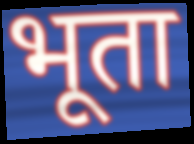
भूता